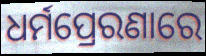
ଧର୍ମପ୍ରେରଣାରେ